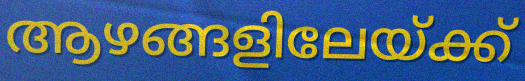
ആഴങ്ങളിലേയ്ക്ക്